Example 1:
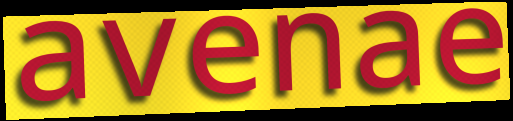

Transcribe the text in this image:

avenae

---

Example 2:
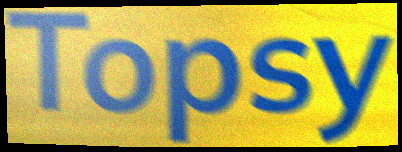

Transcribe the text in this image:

Topsy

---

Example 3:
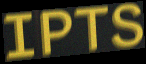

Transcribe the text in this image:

IPTS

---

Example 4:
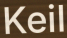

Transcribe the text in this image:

Keil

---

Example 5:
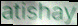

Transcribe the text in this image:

atishay